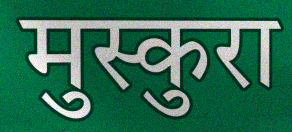
मुस्कुरा